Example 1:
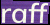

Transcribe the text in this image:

raff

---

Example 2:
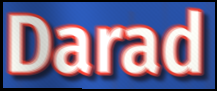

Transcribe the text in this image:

Darad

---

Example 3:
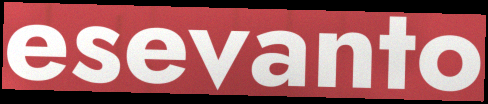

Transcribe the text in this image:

esevanto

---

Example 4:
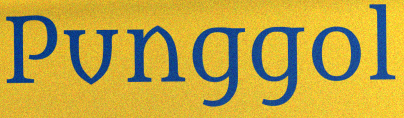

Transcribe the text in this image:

Punggol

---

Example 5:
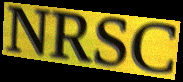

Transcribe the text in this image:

NRSC